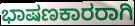
ಭಾಷಣಕಾರರಾಗಿ